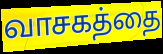
வாசகத்தை